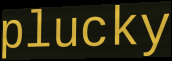
plucky